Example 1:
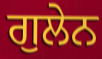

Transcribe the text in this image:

ਗੁਲੇਨ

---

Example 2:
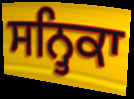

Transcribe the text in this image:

ਸਨ੍ਤਿਕਾ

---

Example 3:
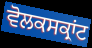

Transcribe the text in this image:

ਵੋਲਕਸਕ੍ਰਾਂਟ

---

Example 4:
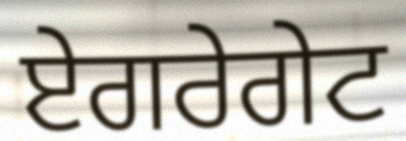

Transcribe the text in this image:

ਏਗਰੇਗੇਟ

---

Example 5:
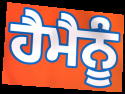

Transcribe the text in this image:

ਹੈਮੈਨੂੰ